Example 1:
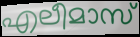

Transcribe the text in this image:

എലീമാസ്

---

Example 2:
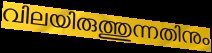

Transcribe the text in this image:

വിലയിരുത്തുന്നതിനും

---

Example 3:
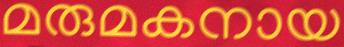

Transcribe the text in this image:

മരുമകനായ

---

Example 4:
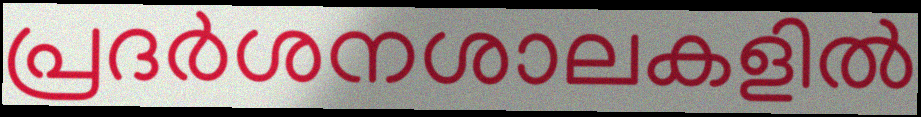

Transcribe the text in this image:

പ്രദർശനശാലകളിൽ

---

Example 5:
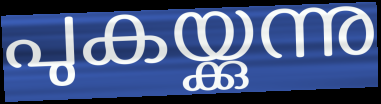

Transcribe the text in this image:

പുകയ്ക്കുന്നു